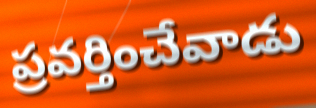
ప్రవర్తించేవాడు